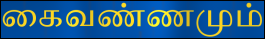
கைவண்ணமும்